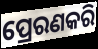
ପ୍ରେରଣକରି